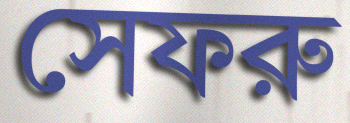
সেফরু